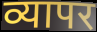
व्यापर